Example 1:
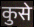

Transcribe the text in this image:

कुसे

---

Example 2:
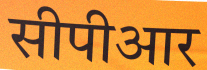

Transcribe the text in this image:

सीपीआर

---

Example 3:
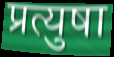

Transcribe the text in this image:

प्रत्युषा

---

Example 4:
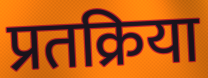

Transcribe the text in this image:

प्रतक्रिया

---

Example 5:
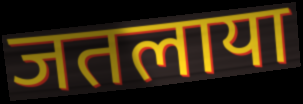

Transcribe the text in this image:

जतलाया